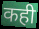
कही